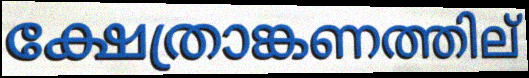
ക്ഷേത്രാങ്കണത്തില്